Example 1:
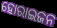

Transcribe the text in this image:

ହୋରାଇଜନ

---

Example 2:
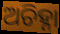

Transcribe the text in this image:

ଅଚିହ୍ନା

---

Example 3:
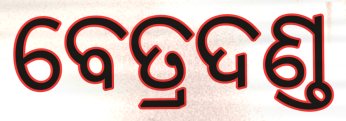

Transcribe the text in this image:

ବେତ୍ରଦଣ୍ଡ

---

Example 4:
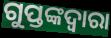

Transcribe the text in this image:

ଗୁପ୍ତଙ୍କଦ୍ୱାରା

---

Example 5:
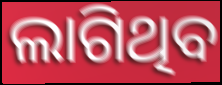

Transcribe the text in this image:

ଲାଗିଥିବ